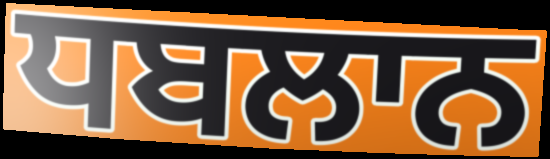
ਧਬਲਾਨ